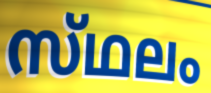
സ്‌ഥലം